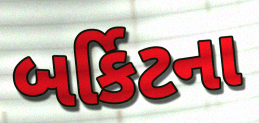
બર્કિટના